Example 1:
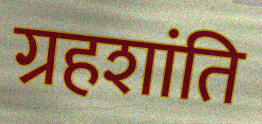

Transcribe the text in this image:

ग्रहशांति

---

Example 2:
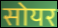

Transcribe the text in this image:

सोयर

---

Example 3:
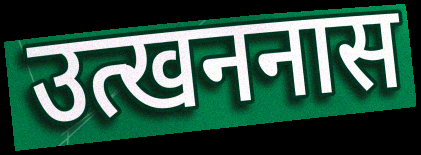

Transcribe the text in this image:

उत्खननास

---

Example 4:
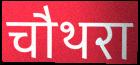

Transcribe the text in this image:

चौथरा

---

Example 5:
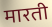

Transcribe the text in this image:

मारती